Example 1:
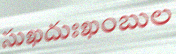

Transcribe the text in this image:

సుఖదుఃఖంబుల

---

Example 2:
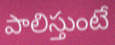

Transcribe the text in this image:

పాలిస్తుంటే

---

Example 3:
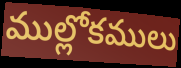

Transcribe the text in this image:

ముల్లోకములు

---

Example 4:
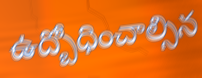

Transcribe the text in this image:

ఉద్బోధించాల్సిన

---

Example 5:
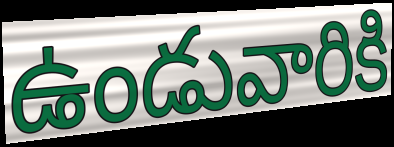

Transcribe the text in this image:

ఉండువారికి